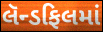
લૅન્ડફિલમાં